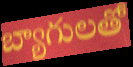
బ్యాగులతో